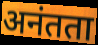
अनंतता